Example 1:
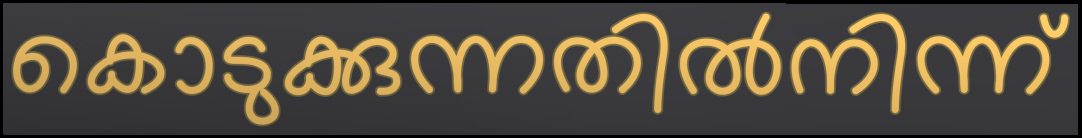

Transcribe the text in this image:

കൊടുക്കുന്നതിൽനിന്ന്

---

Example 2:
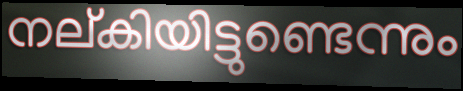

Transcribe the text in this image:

നല്കിയിട്ടുണ്ടെന്നും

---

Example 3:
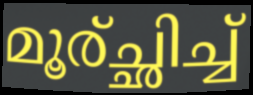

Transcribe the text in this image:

മൂര്ച്ഛിച്ച്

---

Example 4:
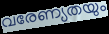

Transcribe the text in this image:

വരേണ്യതയും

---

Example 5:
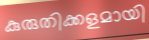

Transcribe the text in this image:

കുരുതിക്കളമായി